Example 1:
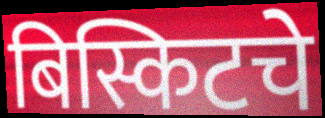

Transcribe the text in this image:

बिस्किटचे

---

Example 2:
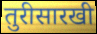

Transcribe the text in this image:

तुरीसारखी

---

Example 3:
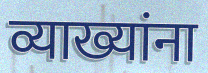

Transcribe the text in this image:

व्याख्यांना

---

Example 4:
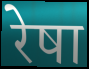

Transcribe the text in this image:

रेषा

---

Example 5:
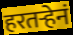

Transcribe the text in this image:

हरतर्‍हेनं